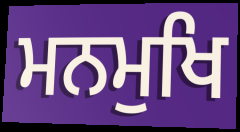
ਮਨਮੁਖਿ